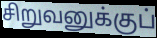
சிறுவனுக்குப்